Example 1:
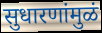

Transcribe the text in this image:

सुधारणांमुळं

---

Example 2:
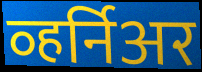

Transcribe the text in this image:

व्हर्निअर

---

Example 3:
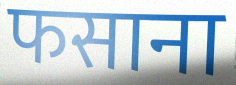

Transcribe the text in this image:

फसाना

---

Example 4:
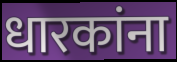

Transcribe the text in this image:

धारकांना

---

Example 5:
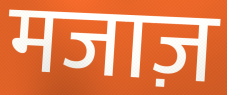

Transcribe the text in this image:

मजाज़